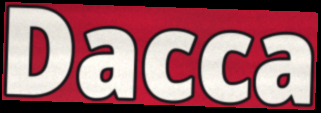
Dacca